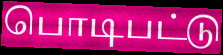
பொடிபட்டு